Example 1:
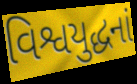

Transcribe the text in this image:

વિશ્વયુદ્ધનાં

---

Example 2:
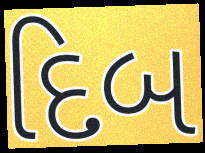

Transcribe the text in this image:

દિબ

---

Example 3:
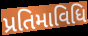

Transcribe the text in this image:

પ્રતિમાવિધિ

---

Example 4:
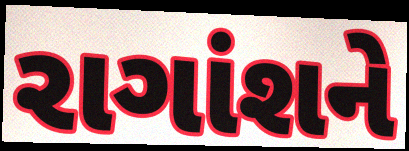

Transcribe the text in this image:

રાગાંશને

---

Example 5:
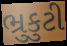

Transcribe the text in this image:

ભ્રુકુટી